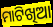
ମାଟିଖିଆ